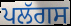
ਪਲੱਗਸ